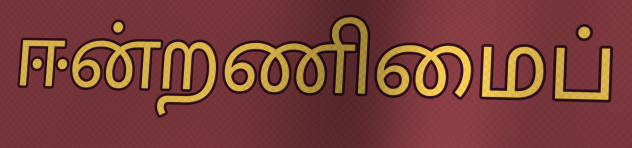
ஈன்றணிமைப்